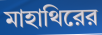
মাহাথিরের